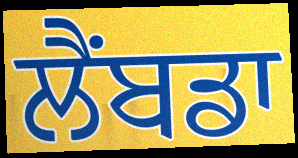
ਲੈਂਬਡਾ